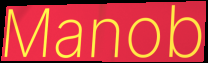
Manob